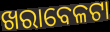
ଖରାବେଳଟା